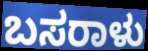
ಬಸರಾಳು